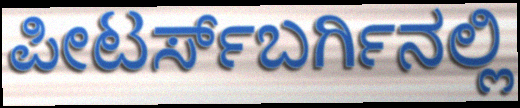
ಪೀಟರ್ಸ್‍ಬರ್ಗಿನಲ್ಲಿ